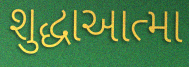
શુદ્ધાઆત્મા